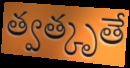
త్వత్కృతే